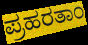
ಪ್ರಹರತಾಂ